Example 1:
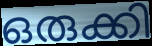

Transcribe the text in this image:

ഒരുക്കി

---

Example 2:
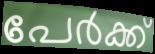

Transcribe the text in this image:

പേർക്ക്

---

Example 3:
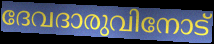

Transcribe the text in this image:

ദേവദാരുവിനോട്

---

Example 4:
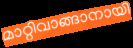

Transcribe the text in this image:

മാറ്റിവാങ്ങാനായി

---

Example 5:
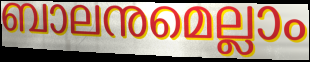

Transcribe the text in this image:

ബാലനുമെല്ലാം